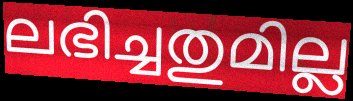
ലഭിച്ചതുമില്ല